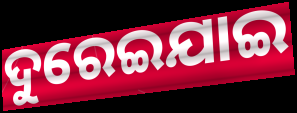
ଦୁରେଇଯାଇ